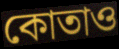
কোতাও